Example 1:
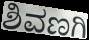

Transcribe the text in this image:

ಶಿವಣಗಿ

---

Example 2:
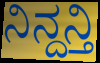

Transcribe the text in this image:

ನಿನ್ದನ್ತಿ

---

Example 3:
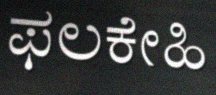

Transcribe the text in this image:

ಫಲಕೇಹಿ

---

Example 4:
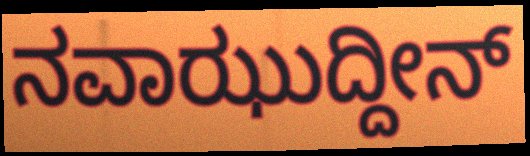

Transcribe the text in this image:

ನವಾಝುದ್ದೀನ್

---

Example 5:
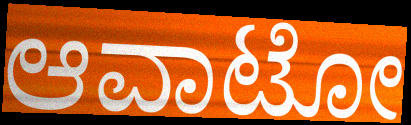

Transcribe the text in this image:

ಆವಾಟೋ